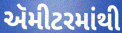
ઍમીટરમાંથી